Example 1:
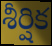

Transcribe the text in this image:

శీర్షిక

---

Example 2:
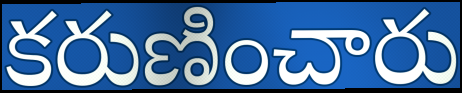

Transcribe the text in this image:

కరుణించారు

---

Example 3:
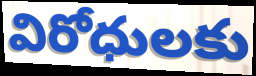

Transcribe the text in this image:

విరోధులకు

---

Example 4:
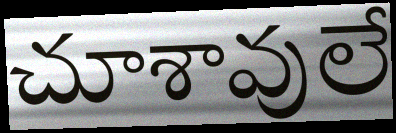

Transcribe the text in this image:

చూశావులే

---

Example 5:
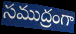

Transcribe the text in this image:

సముద్రంగా